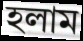
হলাম